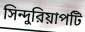
সিন্দুরিয়াপটি